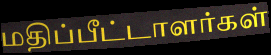
மதிப்பீட்டாளர்கள்